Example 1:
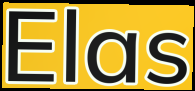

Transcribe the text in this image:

Elas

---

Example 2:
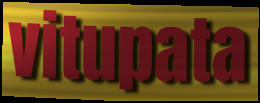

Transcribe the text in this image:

vitupata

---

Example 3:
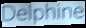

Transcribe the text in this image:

Delphine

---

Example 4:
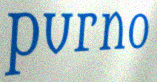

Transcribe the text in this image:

purno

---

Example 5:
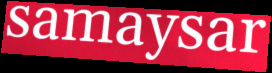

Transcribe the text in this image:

samaysar